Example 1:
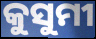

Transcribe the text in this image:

କୁସୁମୀ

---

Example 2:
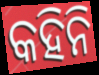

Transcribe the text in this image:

କହିନି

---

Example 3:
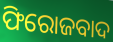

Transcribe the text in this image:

ଫିରୋଜବାଦ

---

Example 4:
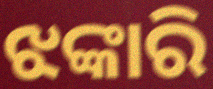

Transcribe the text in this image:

ଝଙ୍କାରି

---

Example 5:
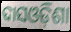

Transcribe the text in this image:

ଦାସଓଡ଼ିଶା